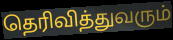
தெரிவித்துவரும்